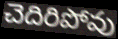
చెదిరిపోవు